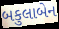
બકુલાબેન